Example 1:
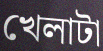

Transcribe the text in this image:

খেলাটা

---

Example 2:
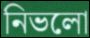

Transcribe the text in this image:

নিভলো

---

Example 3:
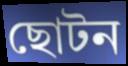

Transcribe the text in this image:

ছোটন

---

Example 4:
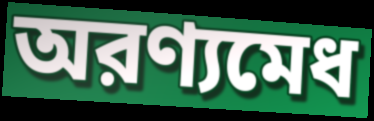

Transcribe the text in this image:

অরণ্যমেধ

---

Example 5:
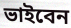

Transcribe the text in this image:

ভাইবেন